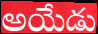
అయేడు